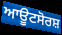
ਆਊਟਸੋਰਸ਼